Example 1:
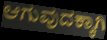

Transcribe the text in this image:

ಆಗುವುದಕ್ಕಾಗಿ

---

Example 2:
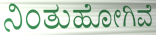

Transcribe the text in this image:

ನಿಂತುಹೋಗಿವೆ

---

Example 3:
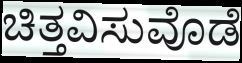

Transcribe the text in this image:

ಚಿತ್ತವಿಸುವೊಡೆ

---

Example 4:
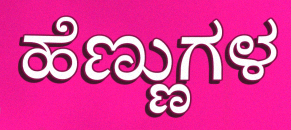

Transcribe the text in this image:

ಹೆಣ್ಣುಗಳ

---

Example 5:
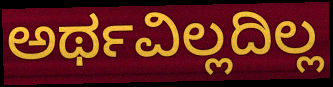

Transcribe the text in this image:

ಅರ್ಥವಿಲ್ಲದಿಲ್ಲ